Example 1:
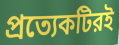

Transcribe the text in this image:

প্রত্যেকটিরই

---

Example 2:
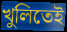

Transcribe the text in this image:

খুলিতেই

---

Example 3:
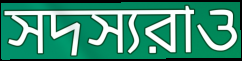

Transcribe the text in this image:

সদস্যরাও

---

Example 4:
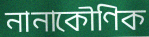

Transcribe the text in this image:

নানাকৌণিক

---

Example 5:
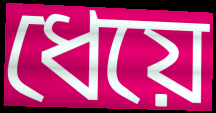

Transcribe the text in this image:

ধেয়ে